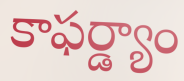
కాఫర్డ్యాం